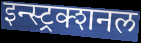
इन्स्ट्रक्शनल